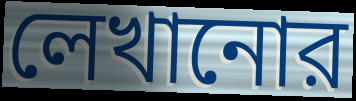
লেখানোর